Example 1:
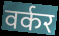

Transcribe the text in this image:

वर्कर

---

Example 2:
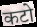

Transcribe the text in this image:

कटो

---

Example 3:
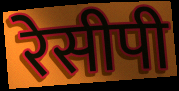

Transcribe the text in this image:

रेसीपी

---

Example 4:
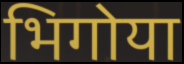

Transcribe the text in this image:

भिगोया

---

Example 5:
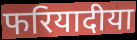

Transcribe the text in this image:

फरियादीया